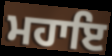
ਮਹਾਇ